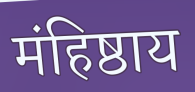
मंहिष्ठाय